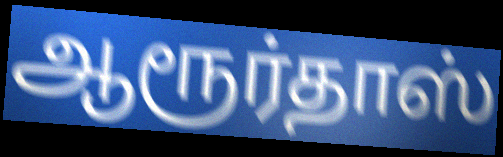
ஆரூர்தாஸ்